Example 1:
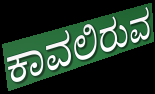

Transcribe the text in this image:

ಕಾವಲಿರುವ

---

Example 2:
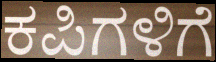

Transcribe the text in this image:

ಕಪಿಗಳಿಗೆ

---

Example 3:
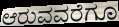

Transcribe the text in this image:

ಆರುವವರೆಗೂ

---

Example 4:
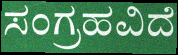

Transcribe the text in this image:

ಸಂಗ್ರಹವಿದೆ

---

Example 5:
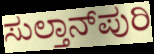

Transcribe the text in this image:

ಸುಲ್ತಾನ್‌ಪುರಿ